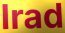
Irad